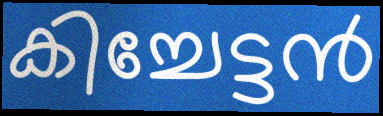
കിച്ചേട്ടൻ